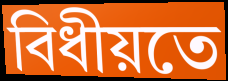
বিধীয়তে